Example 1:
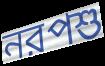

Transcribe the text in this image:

নরপশু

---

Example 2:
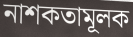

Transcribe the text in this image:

নাশকতামূলক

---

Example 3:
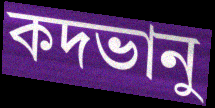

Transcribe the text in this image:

কদভানু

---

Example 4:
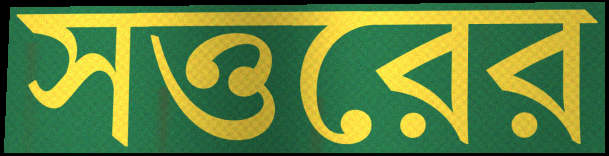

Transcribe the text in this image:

সত্তরের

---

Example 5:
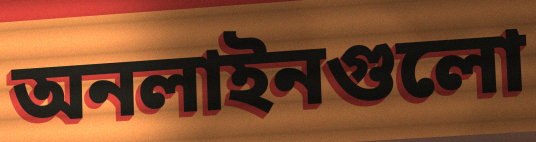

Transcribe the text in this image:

অনলাইনগুলো